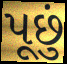
પૂછું